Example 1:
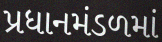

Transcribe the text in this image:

પ્રધાનમંડળમાં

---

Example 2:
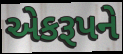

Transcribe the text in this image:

એકરૂપને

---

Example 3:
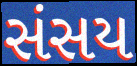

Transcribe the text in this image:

સંસય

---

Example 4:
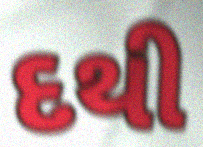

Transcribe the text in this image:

દથી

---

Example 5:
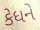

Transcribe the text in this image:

કેધને